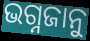
ଭଗ୍ନଜାନୁ